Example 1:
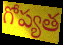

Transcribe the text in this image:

గోప్యత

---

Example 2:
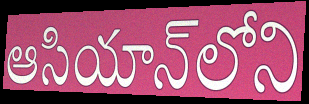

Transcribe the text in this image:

ఆసియాన్‌లోని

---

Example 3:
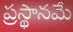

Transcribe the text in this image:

ప్రస్థానమే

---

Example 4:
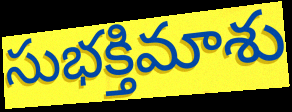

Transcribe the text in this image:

సుభక్తిమాశు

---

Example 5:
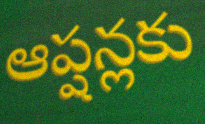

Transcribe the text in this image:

ఆప్షన్లకు